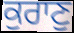
ਕੁਰਾਣੁ